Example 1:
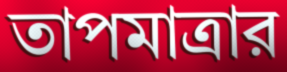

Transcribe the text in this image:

তাপমাত্রার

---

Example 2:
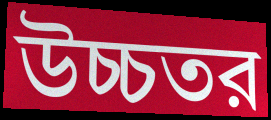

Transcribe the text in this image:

উচ্চতর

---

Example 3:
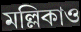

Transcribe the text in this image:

মল্লিকাও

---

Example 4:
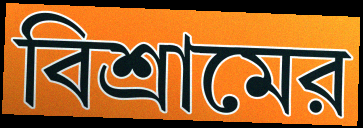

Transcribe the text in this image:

বিশ্রামের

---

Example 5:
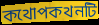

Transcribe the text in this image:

কথোপকথনটি